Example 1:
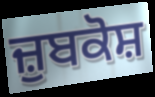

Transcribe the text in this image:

ਜ਼ੁਬਕੋਸ਼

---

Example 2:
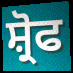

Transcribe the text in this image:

ਸ਼੍ਰੋਫ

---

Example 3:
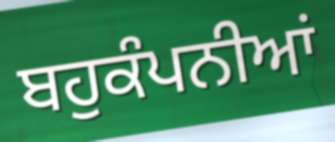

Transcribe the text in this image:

ਬਹੁਕੰਪਨੀਆਂ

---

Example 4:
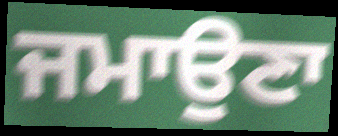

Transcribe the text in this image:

ਜਮਾਉਣਾ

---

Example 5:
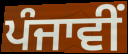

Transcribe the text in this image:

ਪੰਜਾਵੀਂ